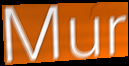
Mur